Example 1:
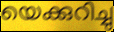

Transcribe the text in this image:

യെക്കുറിച്ചു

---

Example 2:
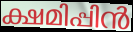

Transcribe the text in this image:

ക്ഷമിപ്പിൻ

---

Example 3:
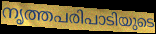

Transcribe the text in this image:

നൃത്തപരിപാടിയുടെ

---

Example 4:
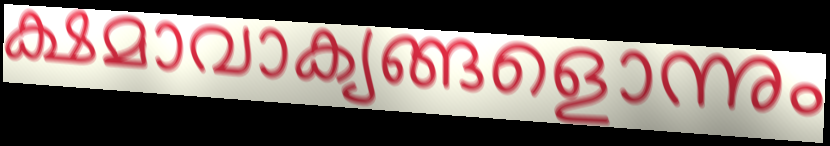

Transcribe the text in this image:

ക്ഷമാവാക്യങ്ങളൊന്നും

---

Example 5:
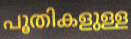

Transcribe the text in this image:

പൂതികളുള്ള